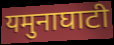
यमुनाघाटी